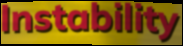
Instability